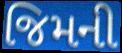
જિમની